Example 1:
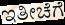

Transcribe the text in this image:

ಇತೀಚೆಗೆ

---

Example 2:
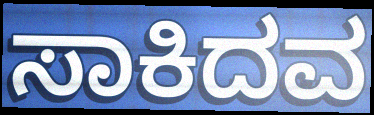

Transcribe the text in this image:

ಸಾಕಿದವ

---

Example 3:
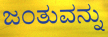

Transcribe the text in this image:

ಜಂತುವನ್ನು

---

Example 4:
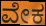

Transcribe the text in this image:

ವೇಕ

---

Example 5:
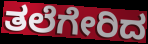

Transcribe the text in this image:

ತಲೆಗೇರಿದ